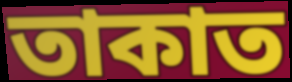
তাকাত